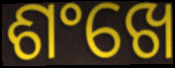
ଶଂଖେ